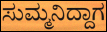
ಸುಮ್ಮನಿದ್ದಾಗ